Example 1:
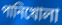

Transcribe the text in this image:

পানিখোলা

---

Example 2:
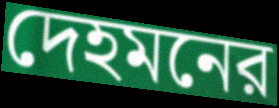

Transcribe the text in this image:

দেহমনের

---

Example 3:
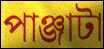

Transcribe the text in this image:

পাঞ্জাটা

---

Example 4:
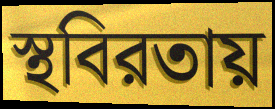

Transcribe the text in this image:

স্থবিরতায়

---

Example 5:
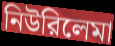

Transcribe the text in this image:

নিউরিলেমা